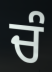
ਚੰ